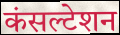
कंसल्टेशन